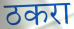
ठकरा